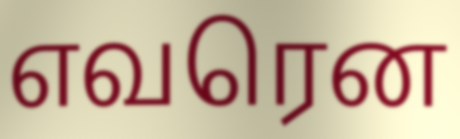
எவரென